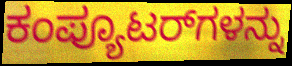
ಕಂಪ್ಯೂಟರ್‌ಗಳನ್ನು